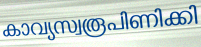
കാവ്യസ്വരൂപിണിക്കി